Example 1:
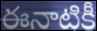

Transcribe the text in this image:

ఈనాటికీ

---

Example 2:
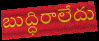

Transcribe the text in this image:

బుద్ధిరాలేదు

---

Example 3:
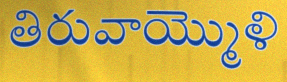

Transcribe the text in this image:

తిరువాయ్మొళి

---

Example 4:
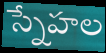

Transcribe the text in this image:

స్నేహల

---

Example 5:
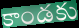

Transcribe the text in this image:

కాండకు